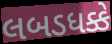
લબડધક્કે